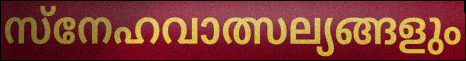
സ്നേഹവാത്സല്യങ്ങളും